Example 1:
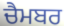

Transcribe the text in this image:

ਚੈਮਬਰ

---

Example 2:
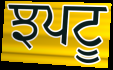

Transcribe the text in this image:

ਝਪਟੂ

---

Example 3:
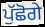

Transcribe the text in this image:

ਪੁੱਛੋਗੇ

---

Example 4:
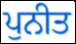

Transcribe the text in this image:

ਪੁਨੀਤ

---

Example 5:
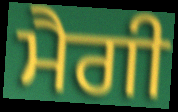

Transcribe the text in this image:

ਮੈਗੀ